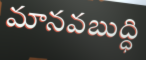
మానవబుద్ధి